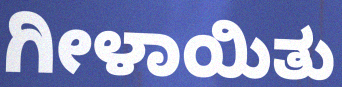
ಗೀಳಾಯಿತು